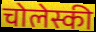
चोलेस्की